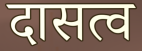
दासत्व